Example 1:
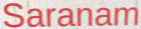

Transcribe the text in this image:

Saranam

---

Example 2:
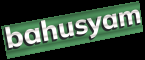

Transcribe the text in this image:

bahusyam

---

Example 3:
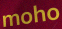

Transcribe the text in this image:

moho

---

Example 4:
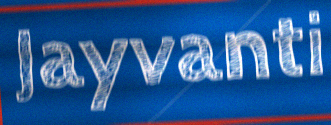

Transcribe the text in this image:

Jayvanti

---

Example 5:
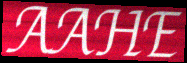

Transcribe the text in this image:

AAHE